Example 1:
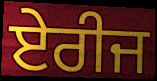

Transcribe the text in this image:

ਏਰੀਜ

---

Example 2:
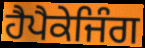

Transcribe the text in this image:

ਹੈਪੈਕੇਜਿੰਗ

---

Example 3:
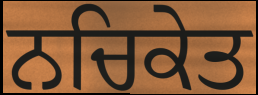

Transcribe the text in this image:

ਨਚਿਕੇਤ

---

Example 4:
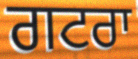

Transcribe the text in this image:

ਗਟਰਾ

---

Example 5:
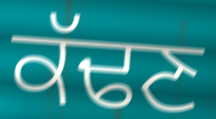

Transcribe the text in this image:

ਕੱਢਣ